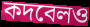
কদবেলও